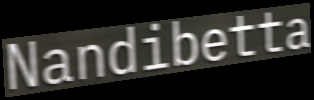
Nandibetta